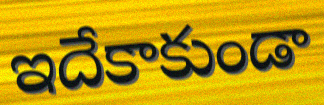
ఇదేకాకుండా